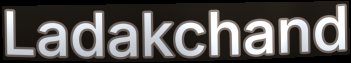
Ladakchand